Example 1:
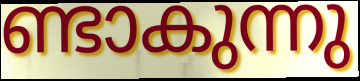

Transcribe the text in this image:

ണ്ടാകുന്നു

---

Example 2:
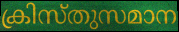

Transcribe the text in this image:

ക്രിസ്തുസമാന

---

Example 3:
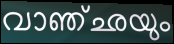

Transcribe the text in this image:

വാഞ്ഛയും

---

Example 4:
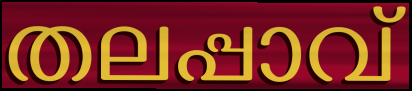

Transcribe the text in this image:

തലപ്പാവ്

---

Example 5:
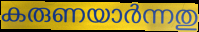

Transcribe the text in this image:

കരുണയാർന്നതു